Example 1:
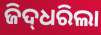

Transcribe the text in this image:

ଜିଦ୍‌ଧରିଲା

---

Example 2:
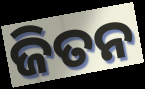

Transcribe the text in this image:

ଜିତନ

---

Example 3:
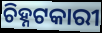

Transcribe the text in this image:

ଚିହ୍ନଟକାରୀ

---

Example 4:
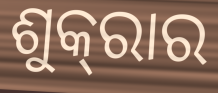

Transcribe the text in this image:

ଶୁକ୍‌ରାର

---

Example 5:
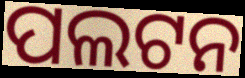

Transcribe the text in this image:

ପଲଟନ